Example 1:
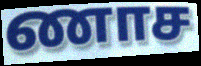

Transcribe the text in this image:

ணாச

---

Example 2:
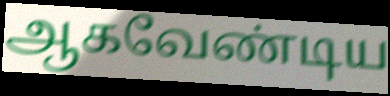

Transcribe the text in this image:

ஆகவேண்டிய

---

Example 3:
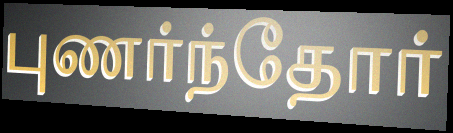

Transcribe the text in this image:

புணர்ந்தோர்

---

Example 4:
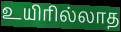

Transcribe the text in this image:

உயிரில்லாத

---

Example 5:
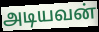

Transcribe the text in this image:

அடியவன்